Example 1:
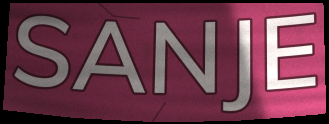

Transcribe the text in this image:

SANJE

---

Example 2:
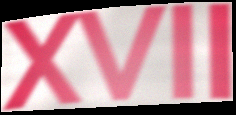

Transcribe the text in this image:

XVII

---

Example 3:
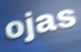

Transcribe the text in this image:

ojas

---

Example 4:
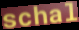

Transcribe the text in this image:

schal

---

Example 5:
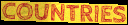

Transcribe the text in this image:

COUNTRIES